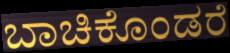
ಬಾಚಿಕೊಂಡರೆ